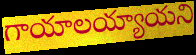
గాయాలయ్యాయని